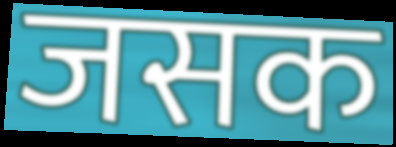
जसक